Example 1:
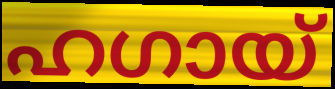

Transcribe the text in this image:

ഹഗായ്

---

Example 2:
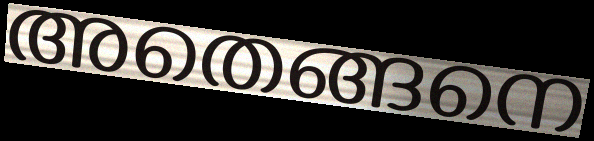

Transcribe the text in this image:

അതെങ്ങനെ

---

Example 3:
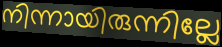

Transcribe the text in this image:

നിന്നായിരുന്നില്ലേ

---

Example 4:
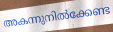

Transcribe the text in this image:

അകന്നുനിൽക്കേണ്ട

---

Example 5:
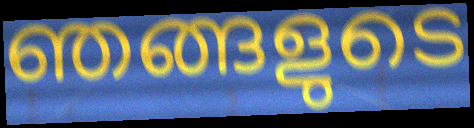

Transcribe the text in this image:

ഞങ്ങളുടെ